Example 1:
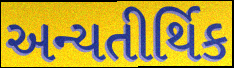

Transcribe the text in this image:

અન્યતીર્થિક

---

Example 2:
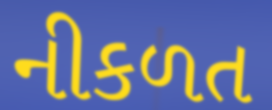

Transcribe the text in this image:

નીકળત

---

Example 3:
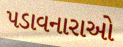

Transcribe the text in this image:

પડાવનારાઓ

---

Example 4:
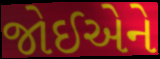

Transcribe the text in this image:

જોઈએને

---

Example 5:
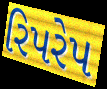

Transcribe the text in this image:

રિપરેપ